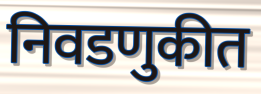
निवडणुकीत